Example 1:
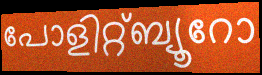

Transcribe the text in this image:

പോളിറ്റ്ബ്യൂറോ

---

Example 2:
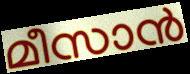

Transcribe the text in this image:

മീസാൻ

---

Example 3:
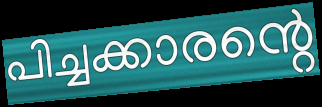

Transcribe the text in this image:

പിച്ചക്കാരന്റെ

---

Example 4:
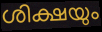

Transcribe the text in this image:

ശിക്ഷയും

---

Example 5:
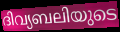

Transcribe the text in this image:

ദിവ്യബലിയുടെ